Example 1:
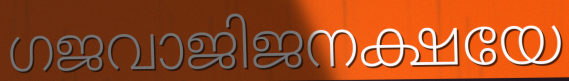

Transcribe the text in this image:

ഗജവാജിജനക്ഷയേ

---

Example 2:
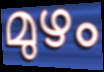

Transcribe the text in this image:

മുഴം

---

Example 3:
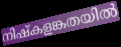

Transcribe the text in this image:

നിഷ്കളങ്കതയിൽ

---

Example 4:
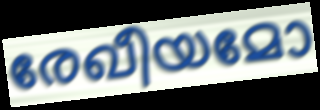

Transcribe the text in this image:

രേഖീയമോ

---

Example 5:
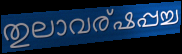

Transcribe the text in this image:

തുലാവര്ഷപ്പച്ച